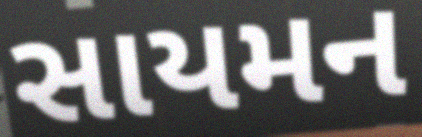
સાયમન